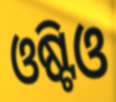
ଓଷ୍ଟିଓ